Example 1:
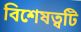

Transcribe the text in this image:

বিশেষত্বটি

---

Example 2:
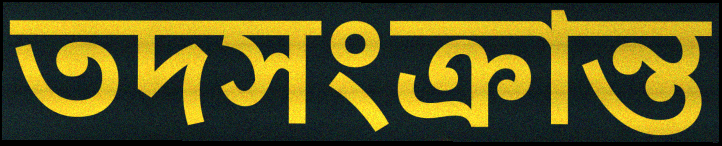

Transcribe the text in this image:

তদসংক্রান্ত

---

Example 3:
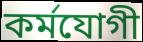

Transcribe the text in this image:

কর্মযোগী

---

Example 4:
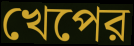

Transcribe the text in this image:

খেপের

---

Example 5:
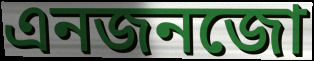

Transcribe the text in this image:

এনজনজো